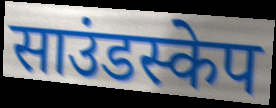
साउंडस्केप